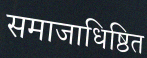
समाजाधिष्ठित